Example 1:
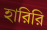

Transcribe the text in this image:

হারিরি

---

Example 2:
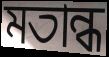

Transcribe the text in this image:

মতান্ধ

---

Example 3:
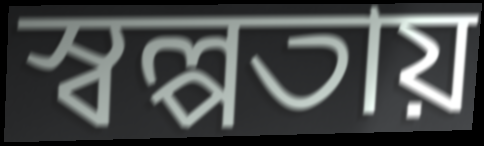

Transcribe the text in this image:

স্বল্পতায়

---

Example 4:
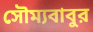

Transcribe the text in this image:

সৌম্যবাবুর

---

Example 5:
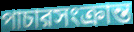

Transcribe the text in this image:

পাচারসংক্রান্ত